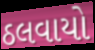
ઠલવાયો